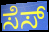
ಸೆಸ್